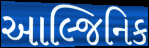
આલ્જિનિક